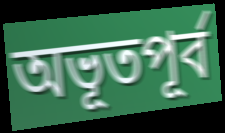
অভূতপূর্ব